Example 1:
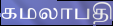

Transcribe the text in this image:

கமலாபதி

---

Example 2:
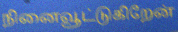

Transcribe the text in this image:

நினைவூட்டுகிறேன்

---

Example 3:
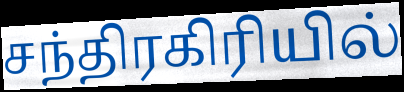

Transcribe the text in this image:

சந்திரகிரியில்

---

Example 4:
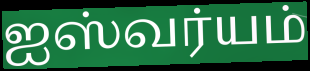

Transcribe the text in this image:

ஐஸ்வர்யம்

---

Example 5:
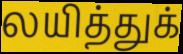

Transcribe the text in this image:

லயித்துக்